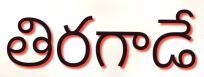
తిరగాడే